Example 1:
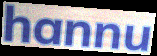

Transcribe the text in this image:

hannu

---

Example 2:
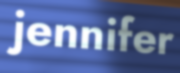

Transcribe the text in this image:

jennifer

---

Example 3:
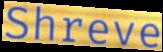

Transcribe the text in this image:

Shreve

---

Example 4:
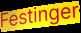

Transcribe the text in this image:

Festinger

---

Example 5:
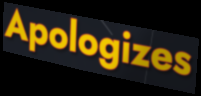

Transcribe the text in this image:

Apologizes